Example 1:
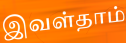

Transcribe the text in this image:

இவள்தாம்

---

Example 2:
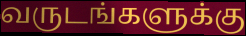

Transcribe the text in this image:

வருடங்களுக்கு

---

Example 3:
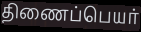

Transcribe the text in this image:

திணைப்பெயர்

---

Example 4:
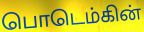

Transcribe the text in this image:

பொடெம்கின்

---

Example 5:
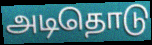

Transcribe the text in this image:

அடிதொடு